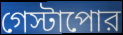
গেস্টাপোর